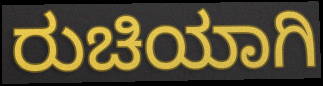
ರುಚಿಯಾಗಿ